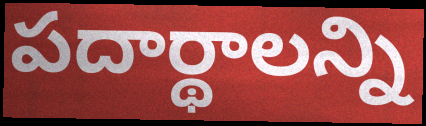
పదార్థాలన్ని